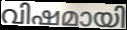
വിഷമായി